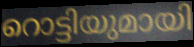
റൊട്ടിയുമായി